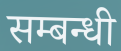
सम्बन्धी